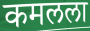
कमलला